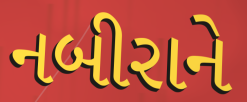
નબીરાને